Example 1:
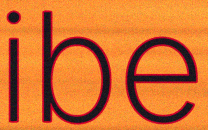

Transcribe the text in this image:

ibe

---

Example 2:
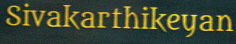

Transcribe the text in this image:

Sivakarthikeyan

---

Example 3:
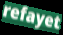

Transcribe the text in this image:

refayet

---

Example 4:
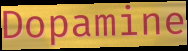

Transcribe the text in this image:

Dopamine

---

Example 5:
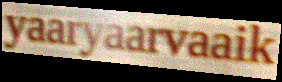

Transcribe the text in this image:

yaaryaarvaaik